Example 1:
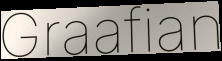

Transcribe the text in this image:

Graafian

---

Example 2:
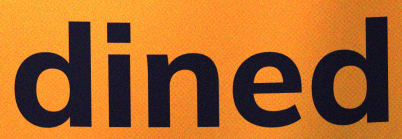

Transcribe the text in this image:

dined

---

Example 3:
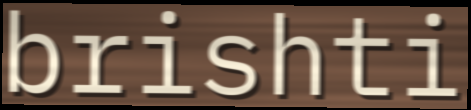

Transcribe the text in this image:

brishti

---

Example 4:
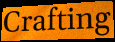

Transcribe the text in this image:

Crafting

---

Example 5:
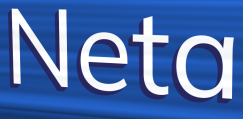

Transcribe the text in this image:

Neta